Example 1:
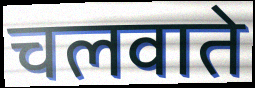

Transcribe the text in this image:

चलवाते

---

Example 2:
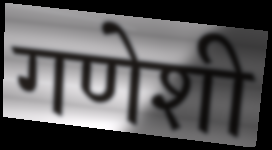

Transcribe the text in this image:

गणेशी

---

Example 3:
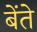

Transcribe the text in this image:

बेंते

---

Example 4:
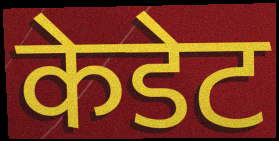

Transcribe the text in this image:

केडेट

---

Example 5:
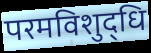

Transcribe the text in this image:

परमविशुद्धि